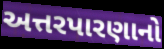
અત્તરપારણાનો